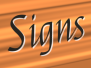
Signs